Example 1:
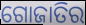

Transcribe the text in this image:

ଗୋଜାତିର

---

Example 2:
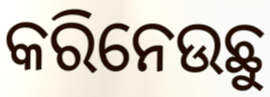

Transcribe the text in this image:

କରିନେଉଛୁ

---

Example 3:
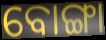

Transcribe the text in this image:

ବୋଙ୍ଗା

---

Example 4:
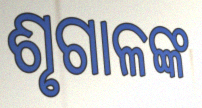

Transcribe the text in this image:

ଶୃଗାଳଙ୍କ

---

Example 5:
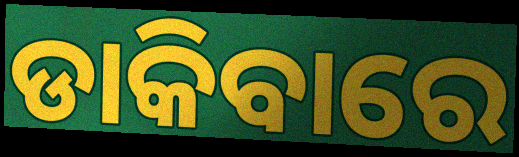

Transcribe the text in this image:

ଡାକିବାରେ